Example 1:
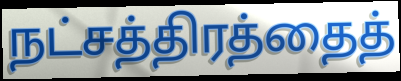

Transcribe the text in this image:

நட்சத்திரத்தைத்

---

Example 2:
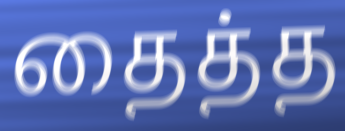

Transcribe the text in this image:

தைத்த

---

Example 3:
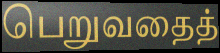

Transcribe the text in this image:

பெறுவதைத்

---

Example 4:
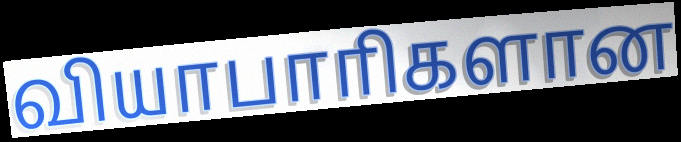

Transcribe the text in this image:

வியாபாரிகளான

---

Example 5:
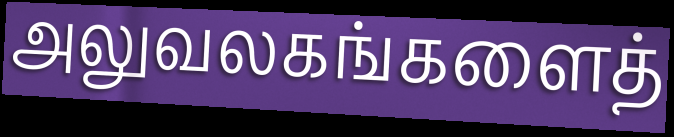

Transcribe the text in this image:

அலுவலகங்களைத்